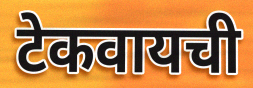
टेकवायची